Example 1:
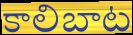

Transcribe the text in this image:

కాలిబాట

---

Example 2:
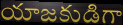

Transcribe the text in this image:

యాజకుడిగా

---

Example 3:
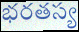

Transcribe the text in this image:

భరతస్య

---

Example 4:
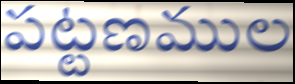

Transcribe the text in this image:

పట్టణముల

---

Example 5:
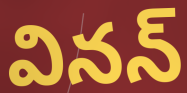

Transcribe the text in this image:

వినన్